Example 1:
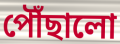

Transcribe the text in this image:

পৌঁছালো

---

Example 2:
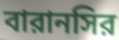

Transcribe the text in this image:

বারানসির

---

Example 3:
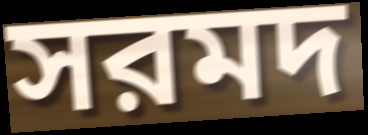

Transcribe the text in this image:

সরমদ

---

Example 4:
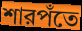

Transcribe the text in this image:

শারপঁতে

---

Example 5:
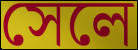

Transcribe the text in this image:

সেলে